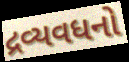
દ્રવ્યવધનો